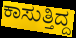
ಕಾಸುತ್ತಿದ್ದ